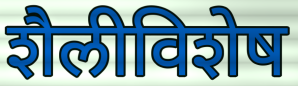
शैलीविशेष